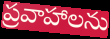
ప్రవాహాలను